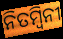
ନିତମ୍ବିନୀ